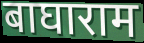
बाघाराम